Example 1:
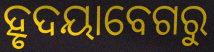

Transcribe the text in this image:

ହୃଦୟାବେଗରୁ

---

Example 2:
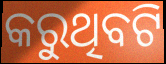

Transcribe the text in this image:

କରୁଥିବଟି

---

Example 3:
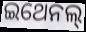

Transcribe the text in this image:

ଇଥେନଲ୍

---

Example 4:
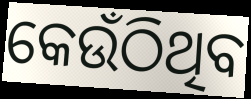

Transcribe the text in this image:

କେଉଁଠିଥିବ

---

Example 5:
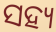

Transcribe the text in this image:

ସହ୍ୟ